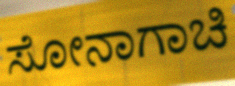
ಸೋನಾಗಾಚಿ